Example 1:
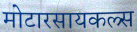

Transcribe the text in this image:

मोटारसायकल्स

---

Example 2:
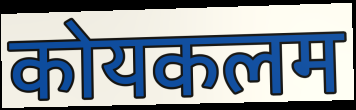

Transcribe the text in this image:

कोयकलम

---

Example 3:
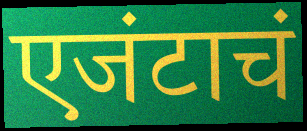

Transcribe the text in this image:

एजंटाचं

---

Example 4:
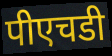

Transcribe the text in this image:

पीएचडी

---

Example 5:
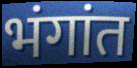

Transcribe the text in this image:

भंगांत